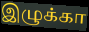
இழுக்கா